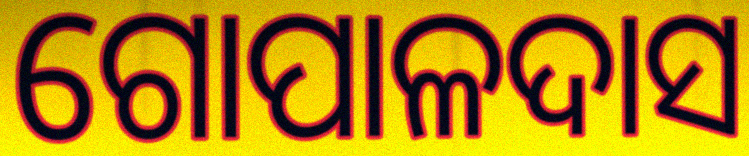
ଗୋପାଳଦାସ